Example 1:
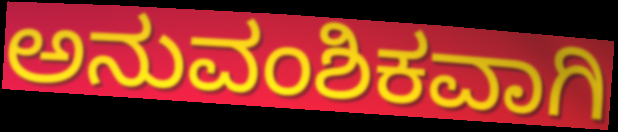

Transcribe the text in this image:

ಅನುವಂಶಿಕವಾಗಿ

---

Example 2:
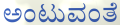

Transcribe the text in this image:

ಅಂಟುವಂತೆ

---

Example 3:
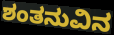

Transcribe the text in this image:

ಶಂತನುವಿನ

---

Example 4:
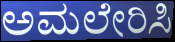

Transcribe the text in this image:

ಅಮಲೇರಿಸಿ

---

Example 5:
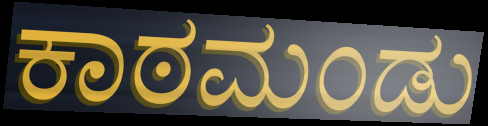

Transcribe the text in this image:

ಕಾಠಮಂಡು